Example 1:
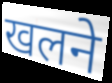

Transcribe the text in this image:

खलने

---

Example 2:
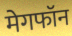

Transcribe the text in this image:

मेगफॉन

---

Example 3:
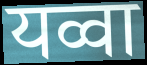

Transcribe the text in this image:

यव्वा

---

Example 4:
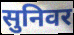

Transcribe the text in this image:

सुनिवर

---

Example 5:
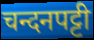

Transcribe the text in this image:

चन्दनपट्टी